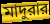
মাদুরার